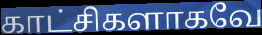
காட்சிகளாகவே